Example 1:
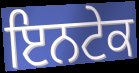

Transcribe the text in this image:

ਇਨਟੇਕ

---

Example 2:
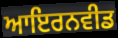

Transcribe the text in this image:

ਆਇਰਨਵੀਡ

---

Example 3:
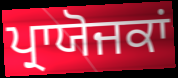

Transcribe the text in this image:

ਪ੍ਰਾਯੋਜਕਾਂ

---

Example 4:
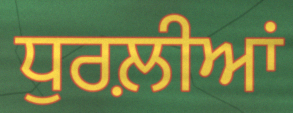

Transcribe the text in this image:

ਧੁਰਲ਼ੀਆਂ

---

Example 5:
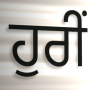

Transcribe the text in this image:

ਹੁਰੀਂ